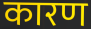
कारण